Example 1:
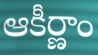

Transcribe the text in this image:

ఆకీర్ణాం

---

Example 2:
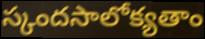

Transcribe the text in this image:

స్కందసాలోక్యతాం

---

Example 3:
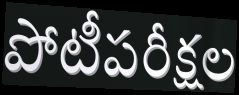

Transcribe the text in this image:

పోటీపరీక్షల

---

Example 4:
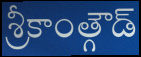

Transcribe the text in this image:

శ్రీకాంత్గౌడ్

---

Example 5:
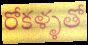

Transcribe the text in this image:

రోకళ్ళతో